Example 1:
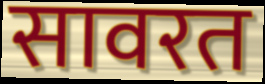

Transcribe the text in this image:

सावरत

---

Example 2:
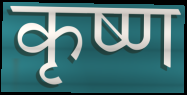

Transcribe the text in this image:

कृष्ण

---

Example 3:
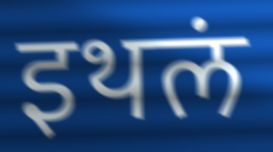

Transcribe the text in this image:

इथलं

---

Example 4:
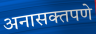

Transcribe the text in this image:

अनासक्तपणे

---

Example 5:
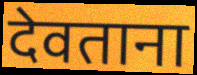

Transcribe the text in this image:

देवताना